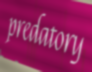
predatory